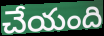
చేయంది